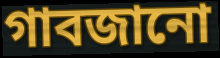
গাবজানো